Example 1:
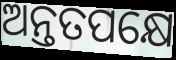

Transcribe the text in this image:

ଅନ୍ତତପକ୍ଷେ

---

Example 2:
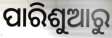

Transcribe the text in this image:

ପାରିଶୁଆରୁ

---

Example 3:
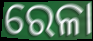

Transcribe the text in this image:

ରେଳା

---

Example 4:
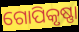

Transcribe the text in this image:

ଗୋପିକୃଷ୍ଣା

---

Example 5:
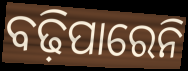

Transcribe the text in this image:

ବଢ଼ିପାରେନି